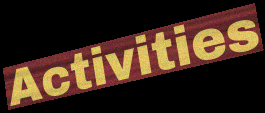
Activities